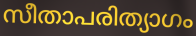
സീതാപരിത്യാഗം